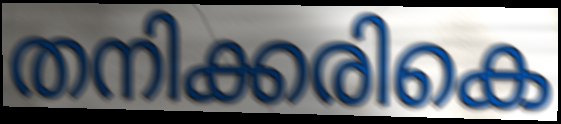
തനിക്കരികെ